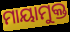
ମାୟାମୁକ୍ତ